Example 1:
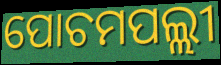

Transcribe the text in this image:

ପୋଚମପଲ୍ଲୀ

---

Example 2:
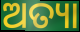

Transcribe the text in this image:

ଅତ୍ୟା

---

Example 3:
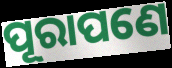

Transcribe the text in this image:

ପୂରାପଣେ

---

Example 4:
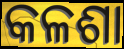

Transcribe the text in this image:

କଳଶା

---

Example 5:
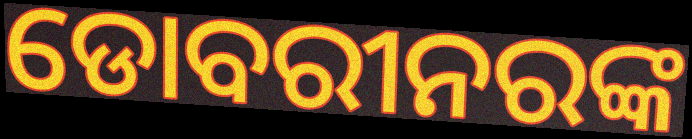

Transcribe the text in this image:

ଡୋବରୀନରଙ୍କ